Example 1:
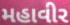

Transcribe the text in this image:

મહાવીર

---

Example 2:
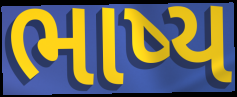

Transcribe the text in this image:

ભાષ્ય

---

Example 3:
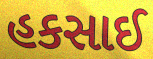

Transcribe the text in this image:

હકસાઈ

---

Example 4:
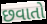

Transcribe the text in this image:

છવાતો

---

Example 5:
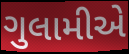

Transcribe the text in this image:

ગુલામીએ